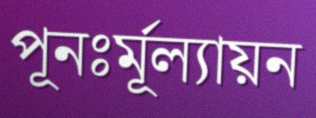
পূনঃর্মূল্যায়ন